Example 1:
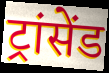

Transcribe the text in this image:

ट्रांसेंड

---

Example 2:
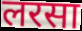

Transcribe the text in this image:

लरसा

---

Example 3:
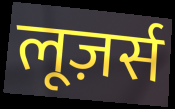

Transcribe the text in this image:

लूज़र्स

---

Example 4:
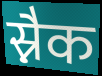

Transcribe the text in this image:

स्नैक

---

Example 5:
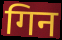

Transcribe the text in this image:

गिन